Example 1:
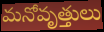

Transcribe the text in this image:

మనోవృత్తులు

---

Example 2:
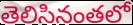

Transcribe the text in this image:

తెలిసినంతలో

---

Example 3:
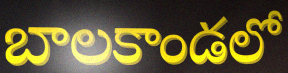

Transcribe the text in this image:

బాలకాండలో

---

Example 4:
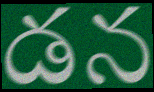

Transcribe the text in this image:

డన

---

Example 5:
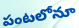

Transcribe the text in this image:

పంటలోనూ